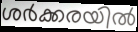
ശർക്കരയിൽ